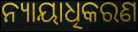
ନ୍ୟାୟାଧିକରଣ